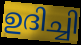
ഉദിച്ചി